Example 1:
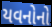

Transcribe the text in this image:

યવનોનો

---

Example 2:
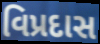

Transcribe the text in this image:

વિપ્રદાસ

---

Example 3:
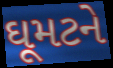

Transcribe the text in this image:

ઘૂમટને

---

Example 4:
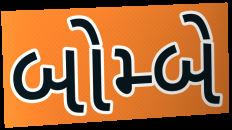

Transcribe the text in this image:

બોમ્બે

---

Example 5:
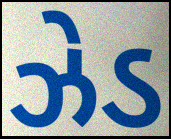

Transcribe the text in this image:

ઝેડ